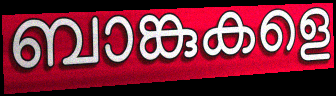
ബാങ്കുകളെ